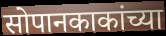
सोपानकाकांच्या